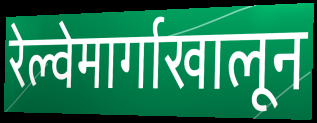
रेल्वेमार्गाखालून